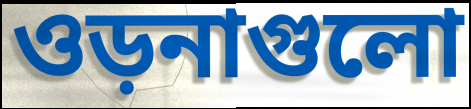
ওড়নাগুলো